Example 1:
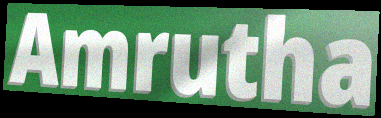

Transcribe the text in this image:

Amrutha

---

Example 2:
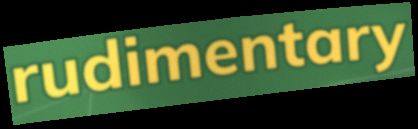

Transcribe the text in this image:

rudimentary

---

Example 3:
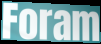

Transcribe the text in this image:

Foram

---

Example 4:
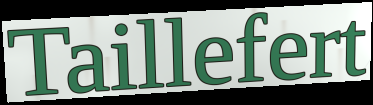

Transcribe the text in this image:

Taillefert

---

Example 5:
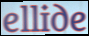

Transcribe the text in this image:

ellide